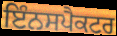
ਇੰਨਸਪੈਕਟਰ